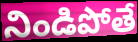
నిండిపోతే